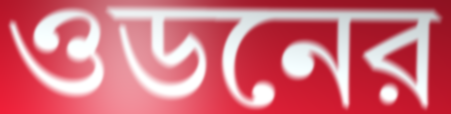
ওডনের